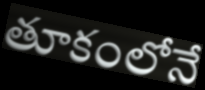
తూకంలోనే